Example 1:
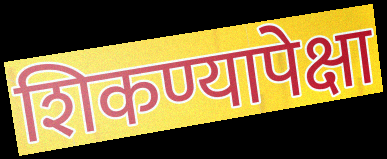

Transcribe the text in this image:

शिकण्यापेक्षा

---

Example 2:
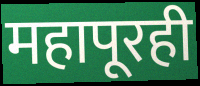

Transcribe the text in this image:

महापूरही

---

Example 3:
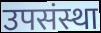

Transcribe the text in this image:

उपसंस्था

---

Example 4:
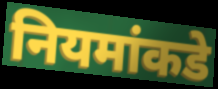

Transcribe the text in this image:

नियमांकडे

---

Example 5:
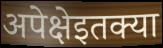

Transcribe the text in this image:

अपेक्षेइतक्या